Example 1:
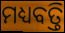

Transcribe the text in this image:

ମଧ୍ୟବତ୍ତି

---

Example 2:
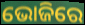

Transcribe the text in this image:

ଭୋଜିରେ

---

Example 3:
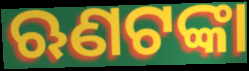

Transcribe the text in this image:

ଋଣଟଙ୍କା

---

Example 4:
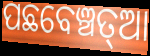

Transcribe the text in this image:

ପଛବେଞ୍ଚତ୍ଆ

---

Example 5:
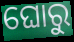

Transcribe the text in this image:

ଘୋରୁ